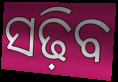
ସଢ଼ିବ